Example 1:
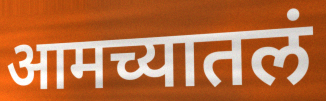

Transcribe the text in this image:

आमच्यातलं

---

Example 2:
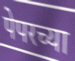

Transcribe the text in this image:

पेपरच्या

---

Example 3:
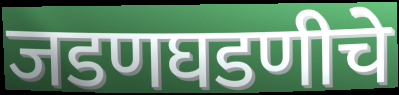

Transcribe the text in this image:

जडणघडणीचे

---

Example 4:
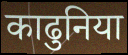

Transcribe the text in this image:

काढुनिया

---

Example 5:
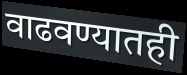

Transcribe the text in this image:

वाढवण्यातही